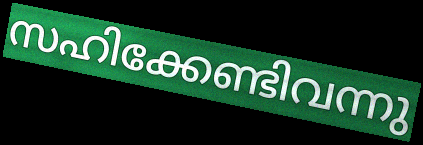
സഹിക്കേണ്ടിവന്നു